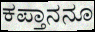
ಕಪ್ತಾನನೂ